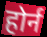
होर्न